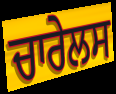
ਚਾਰੇਲਸ